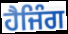
ਹੈਜਿੰਗ